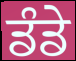
ਡੰਡੇ